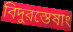
বিদুরস্তেষাং